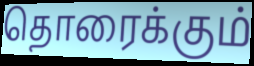
தொரைக்கும்